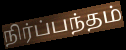
நிர்ப்பந்தம்